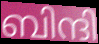
ബിന്ദി